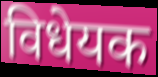
विधेयक